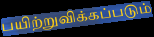
பயிற்றுவிக்கப்படும்